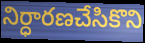
నిర్ధారణచేసికొని